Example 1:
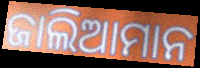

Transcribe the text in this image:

ଜାଲିଆମାନ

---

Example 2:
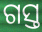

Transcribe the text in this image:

ଗସ୍ତ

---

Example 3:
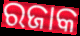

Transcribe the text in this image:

ରଜାକ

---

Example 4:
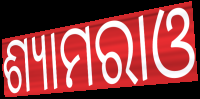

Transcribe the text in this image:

ଶ୍ୟାମରାଓ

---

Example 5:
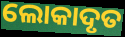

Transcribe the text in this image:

ଲୋକାଦୃତ